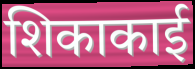
शिकाकाई